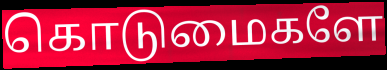
கொடுமைகளே